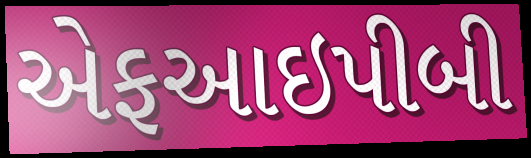
એફઆઇપીબી